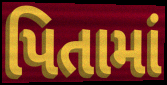
પિતામાં